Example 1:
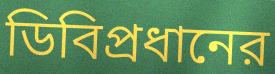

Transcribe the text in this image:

ডিবিপ্রধানের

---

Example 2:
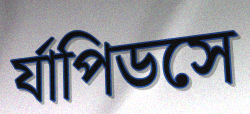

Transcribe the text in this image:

র্যাপিডসে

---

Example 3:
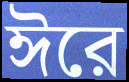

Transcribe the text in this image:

ঈরে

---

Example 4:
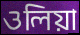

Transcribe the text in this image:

ওলিয়া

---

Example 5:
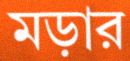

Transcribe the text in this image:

মড়ার